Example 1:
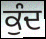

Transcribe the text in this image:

ਕੁੰਦ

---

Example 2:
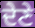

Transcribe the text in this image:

ਦੇਣੇ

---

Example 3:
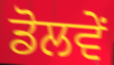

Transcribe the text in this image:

ਡੋਲਵੇਂ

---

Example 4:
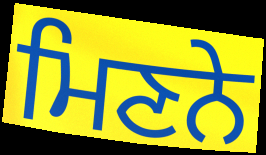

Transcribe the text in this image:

ਮਿਣਨੇ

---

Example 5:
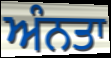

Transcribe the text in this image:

ਅੰਨਤਾ